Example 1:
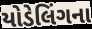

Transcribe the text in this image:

યોડેલિંગના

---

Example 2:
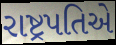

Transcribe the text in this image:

રાષ્ટ્રપતિએ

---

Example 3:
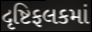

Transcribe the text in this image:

દૃષ્ટિફલકમાં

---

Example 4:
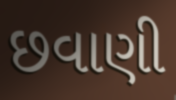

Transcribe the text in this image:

છવાણી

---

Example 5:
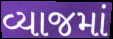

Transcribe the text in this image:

વ્યાજમાં